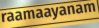
raamaayanam